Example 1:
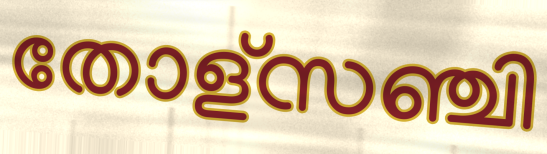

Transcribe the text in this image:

തോള്സഞ്ചി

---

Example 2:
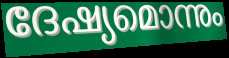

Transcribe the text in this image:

ദേഷ്യമൊന്നും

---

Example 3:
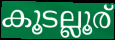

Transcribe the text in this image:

കൂടല്ലൂര്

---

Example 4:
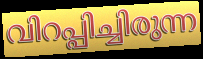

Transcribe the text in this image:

വിറപ്പിച്ചിരുന്ന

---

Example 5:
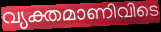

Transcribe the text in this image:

വ്യക്തമാണിവിടെ